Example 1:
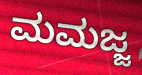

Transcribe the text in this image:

ಮಮಜ್ಜ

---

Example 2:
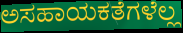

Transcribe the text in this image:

ಅಸಹಾಯಕತೆಗಳೆಲ್ಲ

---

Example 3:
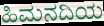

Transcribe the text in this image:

ಹಿಮನದಿಯ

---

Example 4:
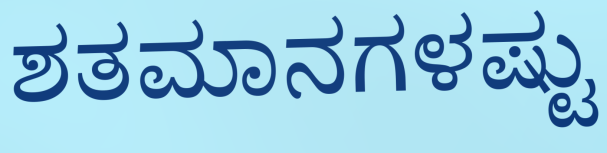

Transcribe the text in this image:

ಶತಮಾನಗಳಷ್ಟು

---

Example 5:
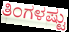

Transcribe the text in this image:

ತಿಂಗಳಷ್ಟು